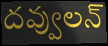
దవ్వులన్